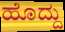
ಹೊದ್ದು